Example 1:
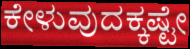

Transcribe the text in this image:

ಕೇಳುವುದಕ್ಕಷ್ಟೇ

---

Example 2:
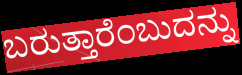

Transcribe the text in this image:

ಬರುತ್ತಾರೆಂಬುದನ್ನು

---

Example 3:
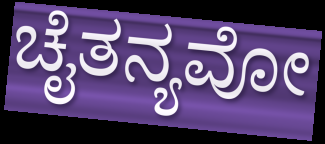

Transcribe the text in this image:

ಚೈತನ್ಯವೋ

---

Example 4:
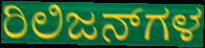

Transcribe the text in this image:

ರಿಲಿಜನ್‌ಗಳ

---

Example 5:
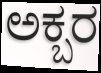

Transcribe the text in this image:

ಅಕ್ಬರ